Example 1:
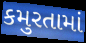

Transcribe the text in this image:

કમુરતામાં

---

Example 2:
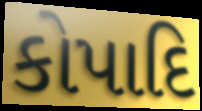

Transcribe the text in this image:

કોપાદિ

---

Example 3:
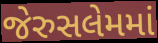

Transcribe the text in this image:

જેરુસલેમમાં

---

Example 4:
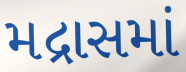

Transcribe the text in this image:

મદ્રાસમાં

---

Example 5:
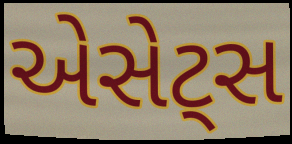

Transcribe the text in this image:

એસેટ્સ